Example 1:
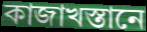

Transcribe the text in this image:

কাজাখস্তানে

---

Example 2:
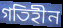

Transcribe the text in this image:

গতিহীন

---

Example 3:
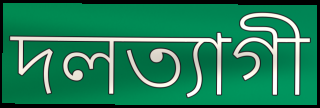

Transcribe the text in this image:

দলত্যাগী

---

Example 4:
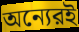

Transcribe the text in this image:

অন্যেরই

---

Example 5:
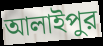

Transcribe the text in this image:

আলাইপুর